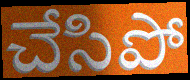
చేసిపో